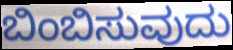
ಬಿಂಬಿಸುವುದು